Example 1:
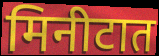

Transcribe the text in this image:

मिनीटात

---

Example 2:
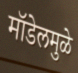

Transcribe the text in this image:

मॉडेलमुळे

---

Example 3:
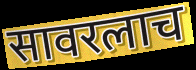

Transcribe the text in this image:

सावरलाच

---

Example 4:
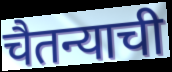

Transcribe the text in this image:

चैतन्याची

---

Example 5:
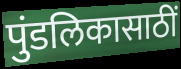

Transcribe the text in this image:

पुंडलिकासाठीं